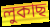
লুকাছ